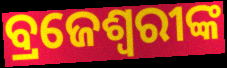
ବ୍ରଜେଶ୍ୱରୀଙ୍କ